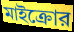
মাইক্রোর